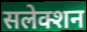
सलेक्शन